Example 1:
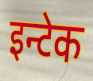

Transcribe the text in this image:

इन्टेक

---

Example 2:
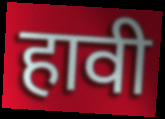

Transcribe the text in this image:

हावी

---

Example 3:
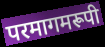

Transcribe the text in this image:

परमागमरूपी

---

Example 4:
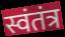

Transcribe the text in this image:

स्वंतंत्र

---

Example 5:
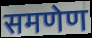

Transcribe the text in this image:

समणेण